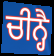
ਚੀਨ੍ਹ੍ਹੈ